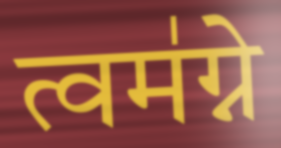
त्वम॑ग्ने